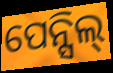
ପେନ୍ସିଲ୍